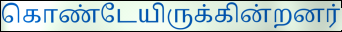
கொண்டேயிருக்கின்றனர்